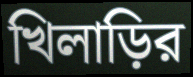
খিলাড়ির